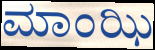
ಮಾಂಝಿ